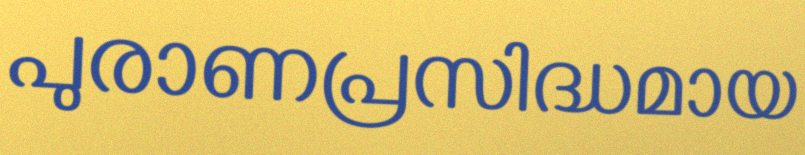
പുരാണപ്രസിദ്ധമായ